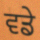
ਵਡੇ